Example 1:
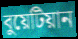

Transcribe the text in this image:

বুয়েটিয়ান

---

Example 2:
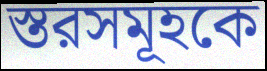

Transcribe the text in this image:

স্তরসমূহকে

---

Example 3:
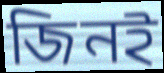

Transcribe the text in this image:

জিনই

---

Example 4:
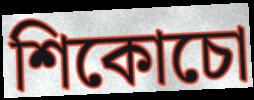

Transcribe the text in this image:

শিকোচো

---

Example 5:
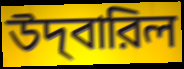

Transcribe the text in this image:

উদ্‌বারিল